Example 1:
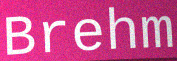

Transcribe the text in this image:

Brehm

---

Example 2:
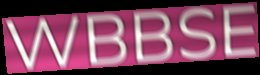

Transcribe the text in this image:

WBBSE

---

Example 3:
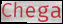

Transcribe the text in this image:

Chega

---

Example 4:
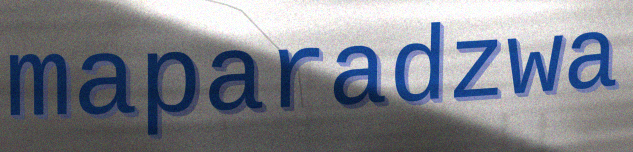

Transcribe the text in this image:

maparadzwa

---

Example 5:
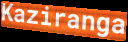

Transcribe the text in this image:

Kaziranga